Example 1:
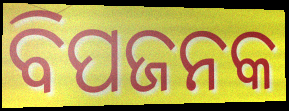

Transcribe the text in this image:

ବିପଜନକ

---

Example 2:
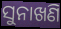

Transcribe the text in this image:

ସୁନାଖଣି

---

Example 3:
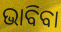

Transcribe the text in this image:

ଭାବିବା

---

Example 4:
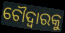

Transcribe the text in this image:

ଚୌଦ୍ୱାରକୁ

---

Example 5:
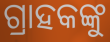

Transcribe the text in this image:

ଗ୍ରାହକଙ୍କୁ